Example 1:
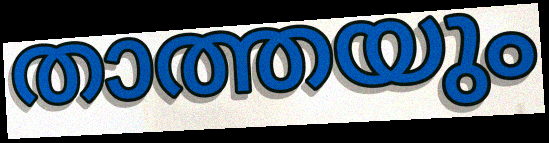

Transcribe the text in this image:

താത്തയും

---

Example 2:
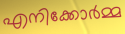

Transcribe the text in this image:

എനിക്കോർമ്മ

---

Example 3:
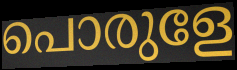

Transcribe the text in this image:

പൊരുളേ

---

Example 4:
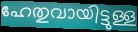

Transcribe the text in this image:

ഹേതുവായിട്ടുള്ള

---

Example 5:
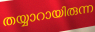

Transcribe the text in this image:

തയ്യാറായിരുന്ന